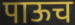
पाऊच